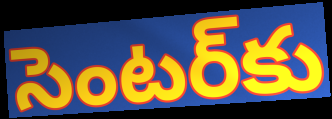
సెంటర్‌కు